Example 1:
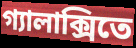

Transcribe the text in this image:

গ্যালাক্সিতে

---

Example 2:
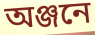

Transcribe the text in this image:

অঞ্জনে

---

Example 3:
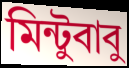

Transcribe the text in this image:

মিন্টুবাবু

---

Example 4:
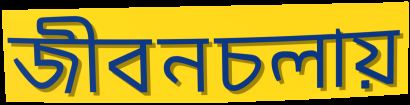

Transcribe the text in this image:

জীবনচলায়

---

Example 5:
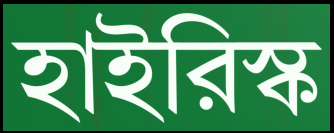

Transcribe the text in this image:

হাইরিস্ক